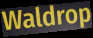
Waldrop